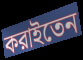
করাইতেন